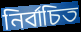
নিৰ্বাচিত